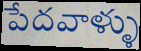
పేదవాళ్ళు